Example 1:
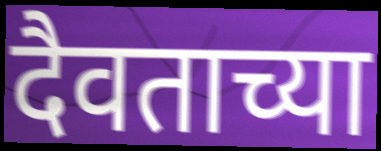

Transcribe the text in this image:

दैवताच्या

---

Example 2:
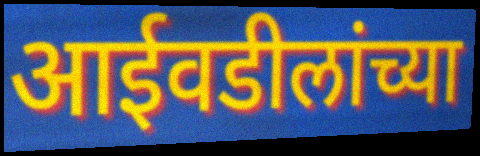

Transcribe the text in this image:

आईवडीलांच्या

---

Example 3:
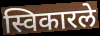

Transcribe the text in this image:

स्विकारले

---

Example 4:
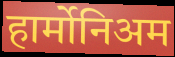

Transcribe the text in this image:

हार्मोनिअम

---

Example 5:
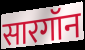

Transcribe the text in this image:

सारगॉन